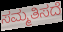
ಸಮ್ಮತಿಸದೆ